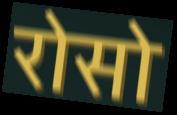
रोसो